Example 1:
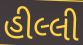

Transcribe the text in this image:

હીલ્લી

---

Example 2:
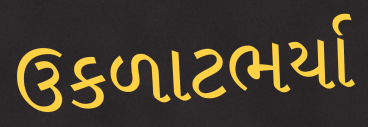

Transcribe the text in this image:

ઉકળાટભર્યા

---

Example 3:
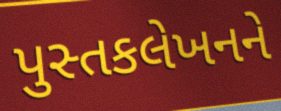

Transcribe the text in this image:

પુસ્તકલેખનને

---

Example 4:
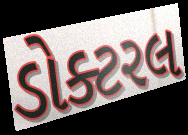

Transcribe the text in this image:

ડોક્ટરલ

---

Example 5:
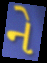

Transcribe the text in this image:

ને